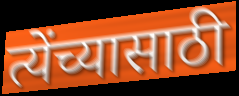
त्येंच्यासाठी